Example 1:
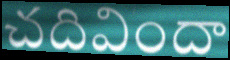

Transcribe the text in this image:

చదివిందా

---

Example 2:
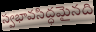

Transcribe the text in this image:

స్వభావసిద్ధమైనది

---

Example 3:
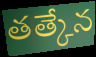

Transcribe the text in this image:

తత్కేన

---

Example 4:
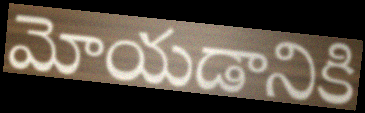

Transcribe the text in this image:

మోయడానికి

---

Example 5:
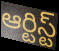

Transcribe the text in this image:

ఆర్టిస్ట్